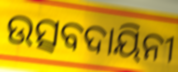
ଉତ୍ସବଦାୟିନୀ